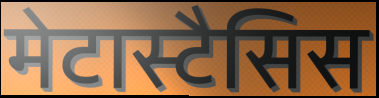
मेटास्टैसिस